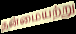
தன்மையற்று